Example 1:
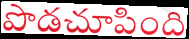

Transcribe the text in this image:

పొడచూపింది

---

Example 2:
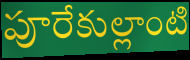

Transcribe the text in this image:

పూరేకుల్లాంటి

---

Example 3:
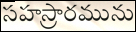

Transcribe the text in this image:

సహస్రారమును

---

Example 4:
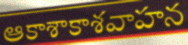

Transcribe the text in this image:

ఆకాశాకాశవాహన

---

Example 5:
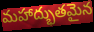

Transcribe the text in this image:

మహాద్భుతమైన